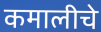
कमालीचे